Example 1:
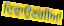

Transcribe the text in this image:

ਦਿਵਾਉਣਗੀਆਂ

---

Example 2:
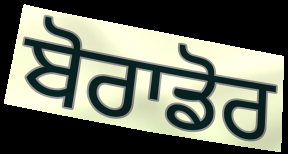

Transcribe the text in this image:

ਬੋਰਾਡੋਰ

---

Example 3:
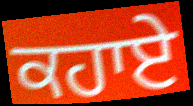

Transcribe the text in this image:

ਕਹਾਏ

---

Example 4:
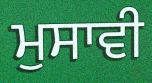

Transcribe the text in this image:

ਮੁਸਾਵੀ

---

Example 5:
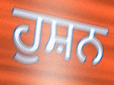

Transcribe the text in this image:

ਹੁਸ਼ਨ